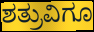
ಶತ್ರುವಿಗೂ